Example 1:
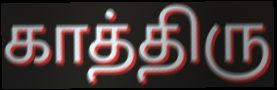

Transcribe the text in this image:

காத்திரு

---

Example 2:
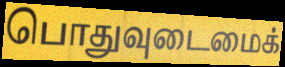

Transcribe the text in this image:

பொதுவுடைமைக்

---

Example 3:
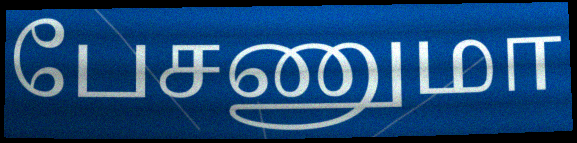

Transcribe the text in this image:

பேசணுமா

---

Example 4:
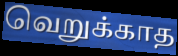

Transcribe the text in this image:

வெறுக்காத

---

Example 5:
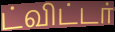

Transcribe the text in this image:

ட்விட்டர்